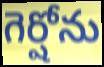
గెర్షోను